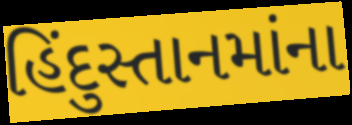
હિંદુસ્તાનમાંના